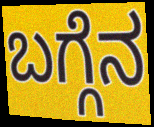
ಬಗ್ಗೆನ